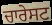
ਚਾਰੇਸਟ